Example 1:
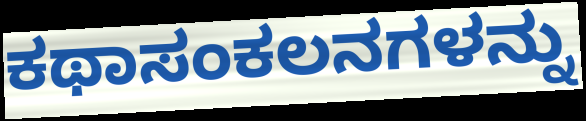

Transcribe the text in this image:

ಕಥಾಸಂಕಲನಗಳನ್ನು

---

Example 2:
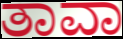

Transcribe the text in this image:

ತಾವಾ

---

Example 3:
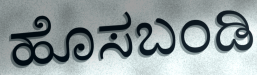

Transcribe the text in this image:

ಹೊಸಬಂಡಿ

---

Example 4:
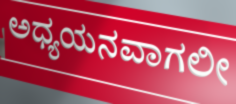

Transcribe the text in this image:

ಅಧ್ಯಯನವಾಗಲೀ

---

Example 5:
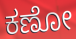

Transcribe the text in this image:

ಕಣೋ